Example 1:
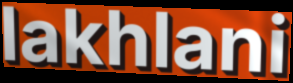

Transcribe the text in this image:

lakhlani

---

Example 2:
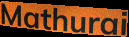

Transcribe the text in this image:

Mathurai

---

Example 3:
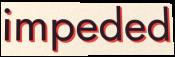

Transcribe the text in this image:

impeded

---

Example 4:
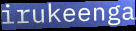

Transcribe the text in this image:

irukeenga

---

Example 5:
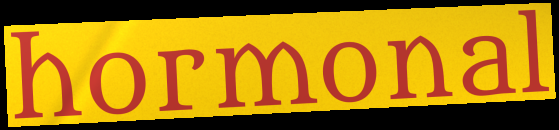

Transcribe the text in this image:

hormonal